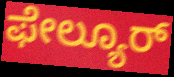
ಫೇಲ್ಯೂರ್